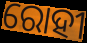
ରୋହୀ